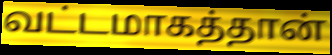
வட்டமாகத்தான்